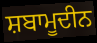
ਸ਼ਬਾਮੂਦੀਨ